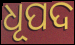
ଧୂପଦ